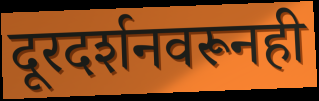
दूरदर्शनवरूनही